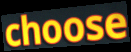
choose